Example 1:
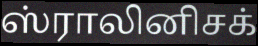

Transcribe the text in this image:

ஸ்ராலினிசக்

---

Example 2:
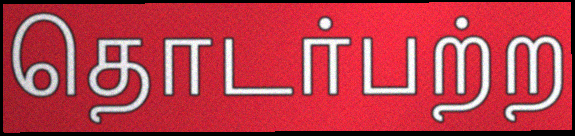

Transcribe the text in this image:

தொடர்பற்ற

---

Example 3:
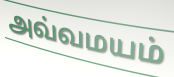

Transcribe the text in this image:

அவ்வமயம்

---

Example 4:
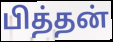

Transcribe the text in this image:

பித்தன்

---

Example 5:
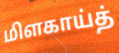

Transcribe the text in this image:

மிளகாய்த்